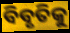
ବିବୃତିକୁ